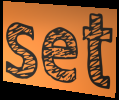
set